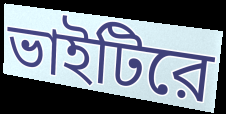
ভাইটিরে